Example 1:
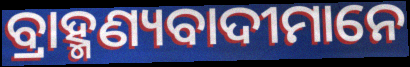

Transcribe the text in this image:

ବ୍ରାହ୍ମଣ୍ୟବାଦୀମାନେ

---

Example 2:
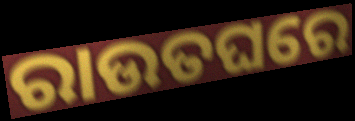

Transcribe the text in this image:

ରାଉତଘରେ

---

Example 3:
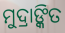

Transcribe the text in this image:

ମୁଦ୍ରାଙ୍କିତ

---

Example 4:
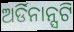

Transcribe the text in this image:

ଅର୍ଡିନାନ୍ସଟି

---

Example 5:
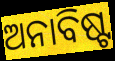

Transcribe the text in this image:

ଅନାବିଷ୍ଟ